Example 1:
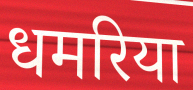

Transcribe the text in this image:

धमरिया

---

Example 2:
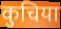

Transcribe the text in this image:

कुचिया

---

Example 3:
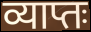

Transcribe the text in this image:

व्याप्तः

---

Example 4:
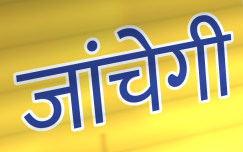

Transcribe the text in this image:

जांचेगी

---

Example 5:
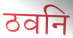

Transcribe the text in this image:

ठवनि